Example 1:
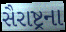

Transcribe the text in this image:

સૈરાષ્ટ્રના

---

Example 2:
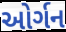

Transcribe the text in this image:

ઓર્ગન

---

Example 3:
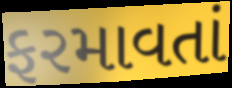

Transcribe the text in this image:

ફરમાવતાં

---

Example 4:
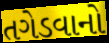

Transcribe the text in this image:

તગેડવાનો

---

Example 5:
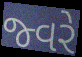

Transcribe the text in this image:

જ્વરે